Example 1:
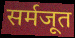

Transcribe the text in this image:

सर्मजूत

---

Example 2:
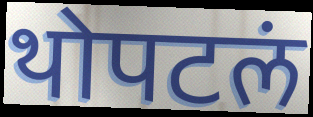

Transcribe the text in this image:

थोपटलं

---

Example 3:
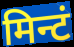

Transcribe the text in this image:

मिन्टं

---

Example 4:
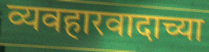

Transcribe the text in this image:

व्यवहारवादाच्या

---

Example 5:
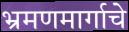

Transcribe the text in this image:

भ्रमणमार्गाचे